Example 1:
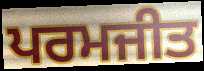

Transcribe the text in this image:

ਪਰਮਜੀਤ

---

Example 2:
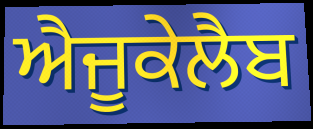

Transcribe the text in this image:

ਐਜੂਕੇਲੈਬ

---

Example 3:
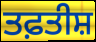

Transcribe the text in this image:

ਤਫ਼ਤੀਸ਼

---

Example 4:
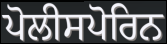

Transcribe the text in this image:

ਪੋਲੀਸਪੋਰਿਨ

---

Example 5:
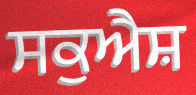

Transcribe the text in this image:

ਸਕੁਐਸ਼